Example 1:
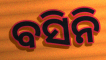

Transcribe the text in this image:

ବସିନି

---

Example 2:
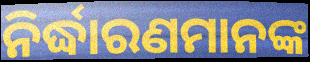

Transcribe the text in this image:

ନିର୍ଦ୍ଧାରଣମାନଙ୍କ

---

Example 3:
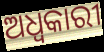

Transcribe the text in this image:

ଅଧ୍ବକାରୀ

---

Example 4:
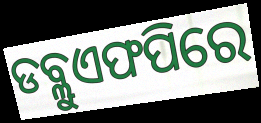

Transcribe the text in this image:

ଡବ୍ଲୁଏଫପିରେ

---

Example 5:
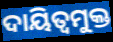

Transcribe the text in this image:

ଦାୟିତ୍ବମୁକ୍ତ